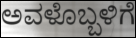
ಅವಳೊಬ್ಬಳಿಗೆ